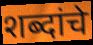
शब्दांचे